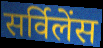
सर्विलेंस